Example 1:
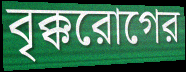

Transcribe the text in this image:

বৃক্করোগের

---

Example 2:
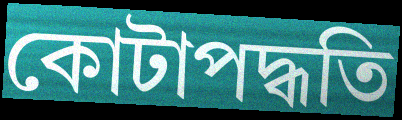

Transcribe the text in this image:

কোটাপদ্ধতি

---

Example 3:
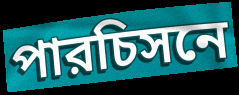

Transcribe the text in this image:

পারচিসনে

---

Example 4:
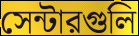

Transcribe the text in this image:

সেন্টারগুলি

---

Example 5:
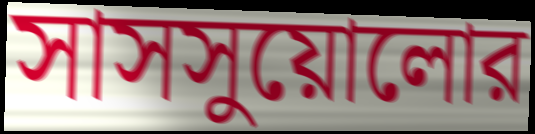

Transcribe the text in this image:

সাসসুয়োলোর